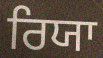
ਰਿਯਾ